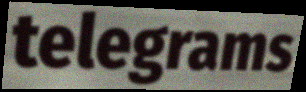
telegrams